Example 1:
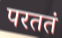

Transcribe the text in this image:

परततं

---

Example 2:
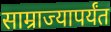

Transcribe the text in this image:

साम्राज्यापर्यंत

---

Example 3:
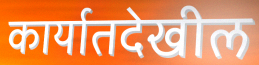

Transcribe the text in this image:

कार्यातदेखील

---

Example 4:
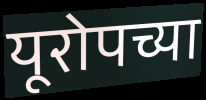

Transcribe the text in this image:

यूरोपच्या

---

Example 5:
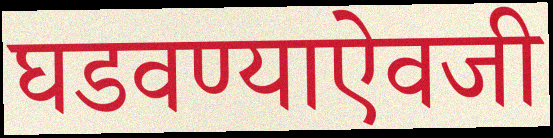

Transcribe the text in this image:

घडवण्याऐवजी